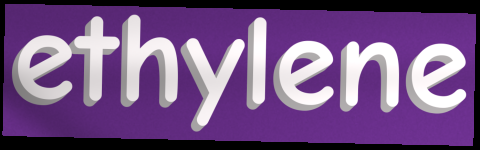
ethylene